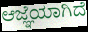
ಆಜ್ಞೆಯಾಗಿದೆ